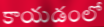
కాయడంలో